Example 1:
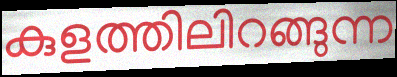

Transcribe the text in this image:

കുളത്തിലിറങ്ങുന്ന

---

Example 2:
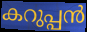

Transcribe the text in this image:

കറുപ്പൻ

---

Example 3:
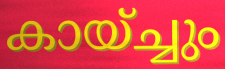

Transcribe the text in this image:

കായ്ച്ചും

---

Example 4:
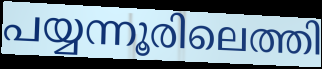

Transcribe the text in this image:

പയ്യന്നൂരിലെത്തി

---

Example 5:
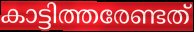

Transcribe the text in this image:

കാട്ടിത്തരേണ്ടത്